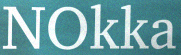
NOkka